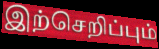
இற்செறிப்பும்